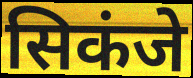
सिकंजे